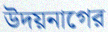
উদয়নাগের